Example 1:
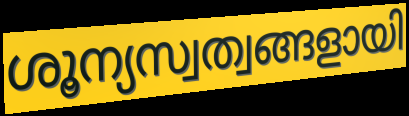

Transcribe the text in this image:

ശൂന്യസ്വത്വങ്ങളായി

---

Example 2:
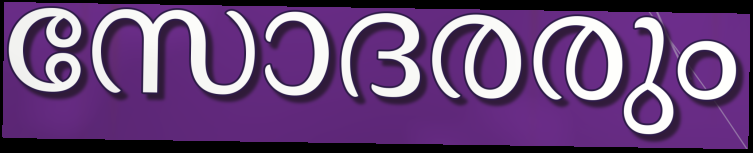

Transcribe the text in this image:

സോദരരും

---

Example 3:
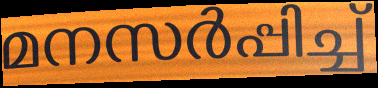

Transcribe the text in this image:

മനസർപ്പിച്ച്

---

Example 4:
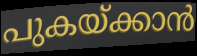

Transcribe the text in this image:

പുകയ്ക്കാൻ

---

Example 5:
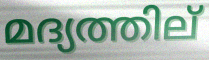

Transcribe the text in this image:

മദ്യത്തില്